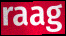
raag